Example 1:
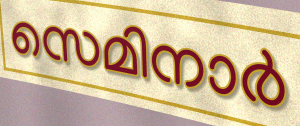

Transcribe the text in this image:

സെമിനാർ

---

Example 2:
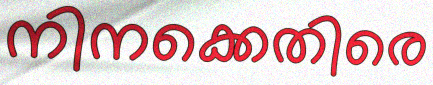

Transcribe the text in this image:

നിനക്കെതിരെ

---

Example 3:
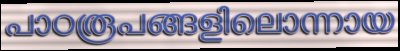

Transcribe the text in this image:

പാഠരൂപങ്ങളിലൊന്നായ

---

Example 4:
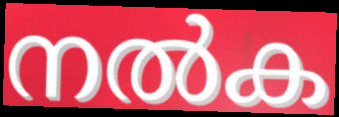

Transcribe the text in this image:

നൽക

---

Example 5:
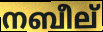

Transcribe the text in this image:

നബീല്